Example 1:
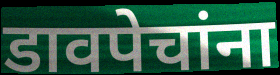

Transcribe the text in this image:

डावपेचांना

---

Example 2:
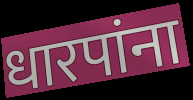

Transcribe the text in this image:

धारपांना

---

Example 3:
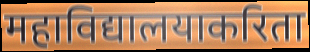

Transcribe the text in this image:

महाविद्यालयाकरिता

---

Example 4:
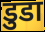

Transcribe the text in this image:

डुडा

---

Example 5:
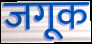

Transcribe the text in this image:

जगूक